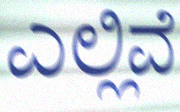
ಎಲ್ಲಿವೆ